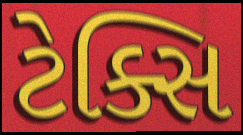
ટેક્સિ